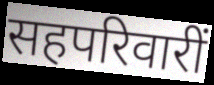
सहपरिवारीं